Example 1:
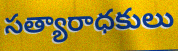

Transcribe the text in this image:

సత్యారాధకులు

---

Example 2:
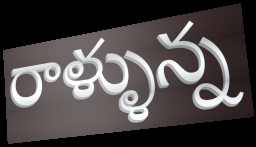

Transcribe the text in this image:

రాళ్ళున్న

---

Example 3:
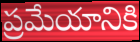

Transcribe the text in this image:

ప్రమేయానికి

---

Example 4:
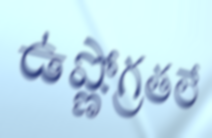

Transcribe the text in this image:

ఉష్ణోగ్రతలే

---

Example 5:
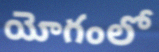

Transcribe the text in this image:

యోగంలో